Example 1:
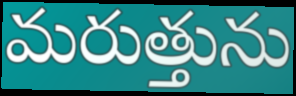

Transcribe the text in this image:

మరుత్తును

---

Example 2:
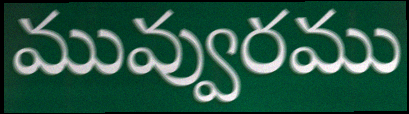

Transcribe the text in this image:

మువ్వురము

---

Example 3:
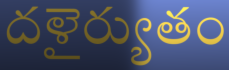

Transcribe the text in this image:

దళైర్యుతం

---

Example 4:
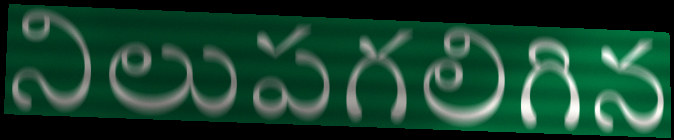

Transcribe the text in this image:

నిలుపగలిగిన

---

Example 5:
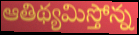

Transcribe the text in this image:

ఆతిథ్యమిస్తోన్న